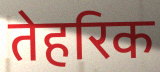
तेहरिक